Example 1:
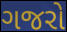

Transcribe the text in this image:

ગજરો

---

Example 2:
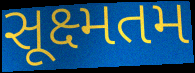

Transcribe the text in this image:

સૂક્ષ્મતમ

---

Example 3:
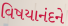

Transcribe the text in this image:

વિષયાનંદને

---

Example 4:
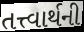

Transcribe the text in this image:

તત્ત્વાર્થની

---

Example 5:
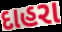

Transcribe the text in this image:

દાહરા